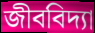
জীববিদ্যা